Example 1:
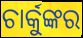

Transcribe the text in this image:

ଚାର୍କୁଙ୍କର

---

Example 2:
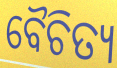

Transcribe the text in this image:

ବୈଚିତ୍ୟ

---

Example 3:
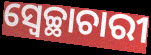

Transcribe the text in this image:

ସ୍ୱେଚ୍ଛାଚାରୀ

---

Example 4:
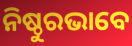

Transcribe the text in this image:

ନିଷ୍ଠୁରଭାବେ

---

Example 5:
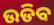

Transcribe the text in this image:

ଉଡିବ